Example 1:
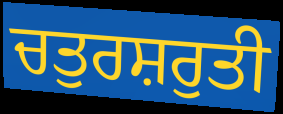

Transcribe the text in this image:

ਚਤੁਰਸ਼ਰੁਤੀ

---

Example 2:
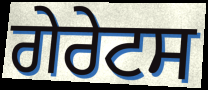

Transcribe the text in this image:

ਗੇਰੇਟਸ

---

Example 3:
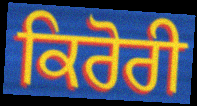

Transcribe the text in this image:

ਕਿਰੋਰੀ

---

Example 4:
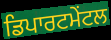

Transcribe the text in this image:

ਡਿਪਾਰਟਮੇਂਟਲ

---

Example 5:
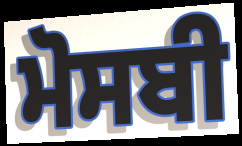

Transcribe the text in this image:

ਮੋਸਬੀ